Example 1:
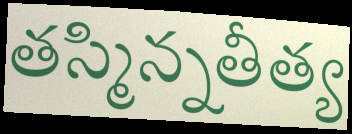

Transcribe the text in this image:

తస్మిన్నతీత్య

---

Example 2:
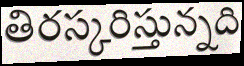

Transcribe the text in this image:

తిరస్కరిస్తున్నది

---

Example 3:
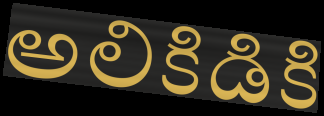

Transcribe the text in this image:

అలికిడికి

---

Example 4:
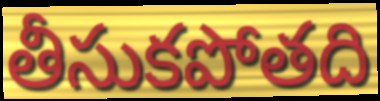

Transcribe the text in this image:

తీసుకపోతది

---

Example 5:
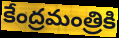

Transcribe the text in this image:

కేంద్రమంత్రికి